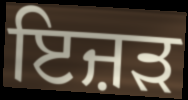
ਇਜ਼ੜ